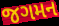
જગમન